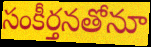
సంకీర్తనతోనూ